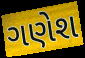
ગણેશ